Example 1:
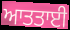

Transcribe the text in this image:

ਆਤਤਾਈ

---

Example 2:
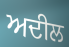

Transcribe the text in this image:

ਅਦੀਲ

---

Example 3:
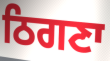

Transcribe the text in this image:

ਠਿਗਣਾ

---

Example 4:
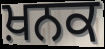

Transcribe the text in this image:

ਖ਼ਨਕ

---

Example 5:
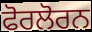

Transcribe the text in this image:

ਫੋਰਲੋਰਨ